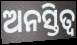
ଅନସ୍ତିତ୍ୱ